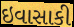
ઇવાસાકી